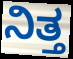
ನಿತ್ತ